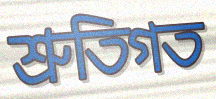
শ্রুতিগত